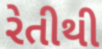
રેતીથી